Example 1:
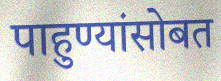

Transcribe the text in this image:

पाहुण्यांसोबत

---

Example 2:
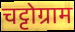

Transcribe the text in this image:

चट्टोग्राम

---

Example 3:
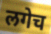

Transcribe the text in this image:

लगेच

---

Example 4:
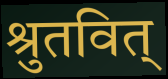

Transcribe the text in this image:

श्रुतवित्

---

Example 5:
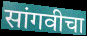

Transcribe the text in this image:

सांगवीचा